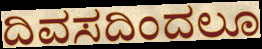
ದಿವಸದಿಂದಲೂ